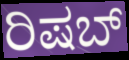
ರಿಷಬ್